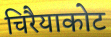
चिरैयाकोट